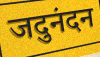
जदुनंदन